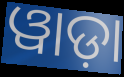
ୱାଡ଼ା